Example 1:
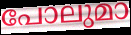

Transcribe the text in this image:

പോലുമാ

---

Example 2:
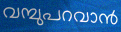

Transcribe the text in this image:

വമ്പുപറവാൻ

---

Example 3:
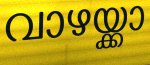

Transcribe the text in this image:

വാഴയ്ക്കാ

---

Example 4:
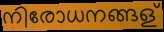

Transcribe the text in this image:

നിരോധനങ്ങള്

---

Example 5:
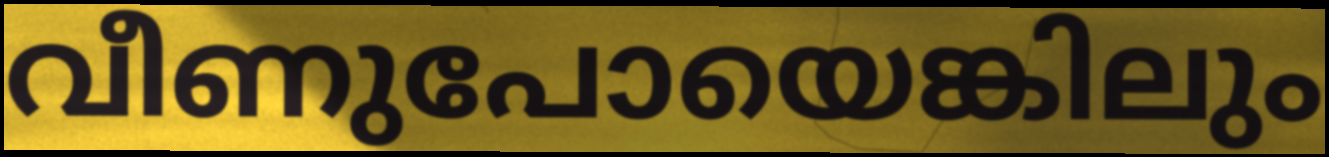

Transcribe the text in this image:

വീണുപോയെങ്കിലും